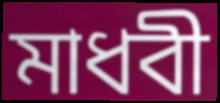
মাধবী